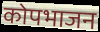
कोपभाजन